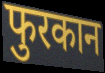
फुरकान